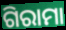
ଗିରାମା